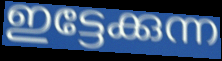
ഇട്ടേക്കുന്ന